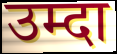
उम्‍दा